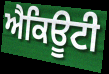
ਐਕਿਊਟੀ